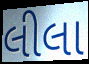
લીલા